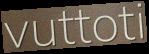
vuttoti